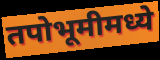
तपोभूमीमध्ये